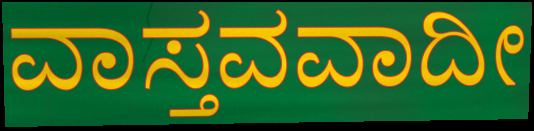
ವಾಸ್ತವವಾದೀ